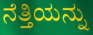
ನೆತ್ತಿಯನ್ನು